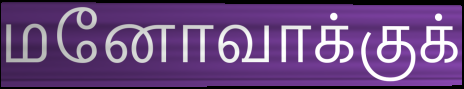
மனோவாக்குக்